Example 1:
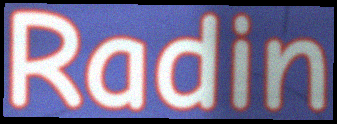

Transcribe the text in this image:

Radin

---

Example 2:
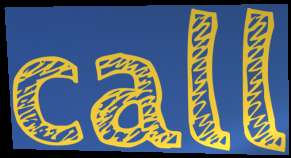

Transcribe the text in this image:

call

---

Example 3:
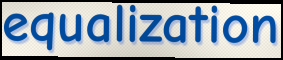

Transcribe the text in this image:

equalization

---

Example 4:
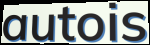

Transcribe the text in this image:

autois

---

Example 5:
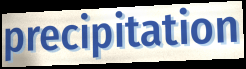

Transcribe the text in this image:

precipitation